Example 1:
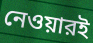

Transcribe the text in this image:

নেওয়ারই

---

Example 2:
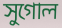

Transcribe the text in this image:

সুগোল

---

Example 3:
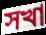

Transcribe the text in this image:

সখা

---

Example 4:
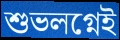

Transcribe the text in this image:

শুভলগ্নেই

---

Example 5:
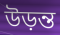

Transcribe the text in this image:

উড়ন্ত